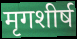
मृगशीर्ष